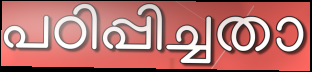
പഠിപ്പിച്ചതാ